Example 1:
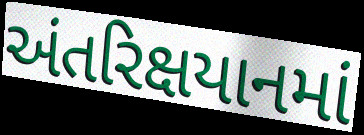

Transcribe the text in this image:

અંતરિક્ષયાનમાં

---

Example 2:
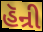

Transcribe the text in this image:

હૅન્રી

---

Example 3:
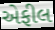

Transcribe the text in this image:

એફીલ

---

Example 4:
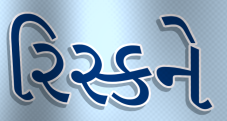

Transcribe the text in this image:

રિસ્કને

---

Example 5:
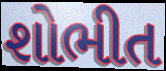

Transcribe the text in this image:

શોભીત